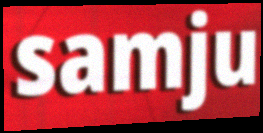
samju